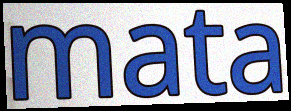
mata